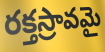
రక్తస్రావమై